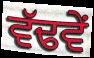
ਵੱਢਵੇਂ